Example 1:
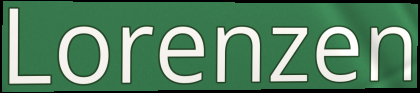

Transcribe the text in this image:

Lorenzen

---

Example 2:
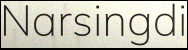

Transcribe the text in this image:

Narsingdi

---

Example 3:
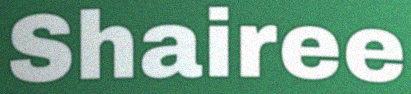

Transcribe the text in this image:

Shairee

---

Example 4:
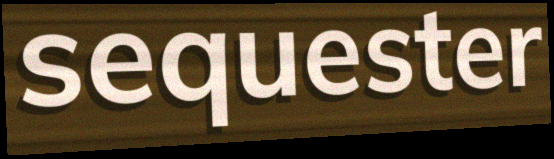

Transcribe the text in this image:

sequester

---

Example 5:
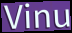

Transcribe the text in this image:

Vinu